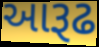
આરૂઢ